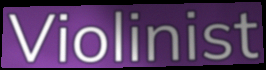
Violinist